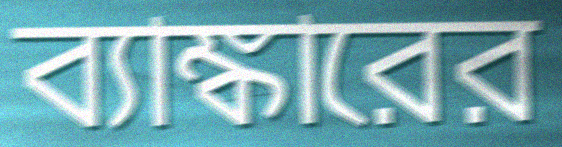
ব্যাঙ্কারের